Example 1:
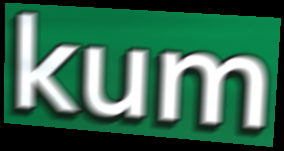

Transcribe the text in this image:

kum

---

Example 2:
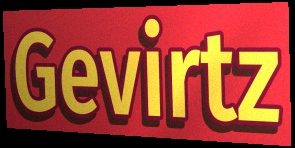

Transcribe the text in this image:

Gevirtz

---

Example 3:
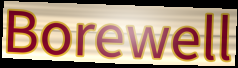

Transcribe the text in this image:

Borewell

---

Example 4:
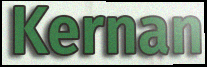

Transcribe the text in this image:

Kernan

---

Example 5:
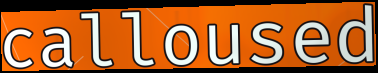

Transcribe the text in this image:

calloused